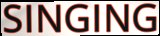
SINGING